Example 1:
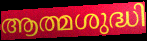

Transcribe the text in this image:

ആത്മശുദ്ധി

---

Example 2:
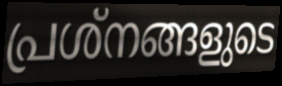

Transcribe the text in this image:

പ്രശ്നങ്ങളുടെ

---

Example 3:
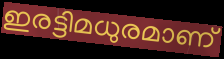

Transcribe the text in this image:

ഇരട്ടിമധുരമാണ്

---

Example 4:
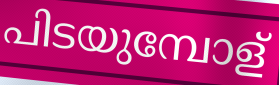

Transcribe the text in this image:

പിടയുമ്പോള്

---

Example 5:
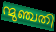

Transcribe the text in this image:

ന്മുഞ്ചതി